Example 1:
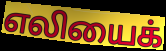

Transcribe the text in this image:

எலியைக்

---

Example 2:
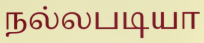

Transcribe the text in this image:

நல்லபடியா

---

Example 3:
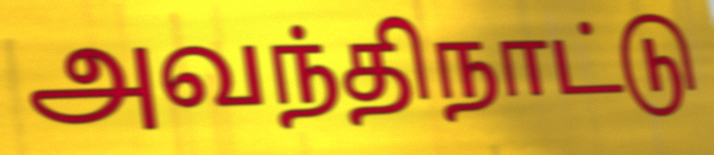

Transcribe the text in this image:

அவந்திநாட்டு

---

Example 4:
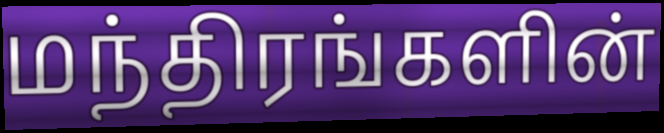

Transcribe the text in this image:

மந்திரங்களின்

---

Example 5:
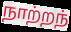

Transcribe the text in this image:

நாற்றந்